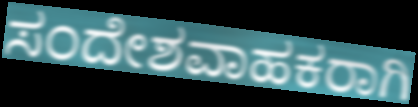
ಸಂದೇಶವಾಹಕರಾಗಿ